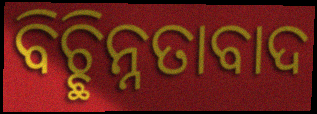
ବିଚ୍ଛିନ୍ନତାବାଦ